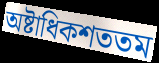
অষ্টাধিকশততম